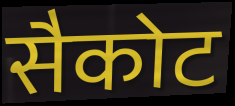
सैकोट